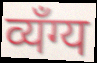
व्यँग्य